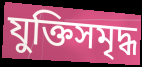
যুক্তিসমৃদ্ধ